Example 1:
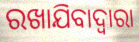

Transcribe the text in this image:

ରଖାଯିବାଦ୍ଵାରା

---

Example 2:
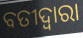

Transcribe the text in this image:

ବତୀଦ୍ୱାରା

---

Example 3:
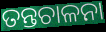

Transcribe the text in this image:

ତନ୍ତଚାଳନା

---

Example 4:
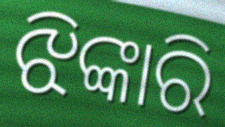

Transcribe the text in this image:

ଝିଙ୍କାରି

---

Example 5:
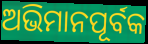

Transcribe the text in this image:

ଅଭିମାନପୂର୍ବକ